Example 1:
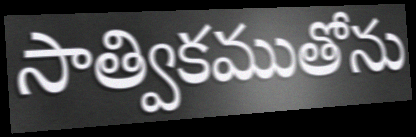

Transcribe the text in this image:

సాత్వికముతోను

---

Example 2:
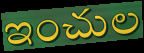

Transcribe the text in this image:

ఇంచుల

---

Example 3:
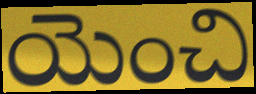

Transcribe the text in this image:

యెంచి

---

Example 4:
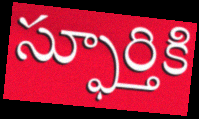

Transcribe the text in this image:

స్ఫూర్తికి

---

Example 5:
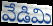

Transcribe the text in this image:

వేడిమి